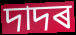
দাদৰ